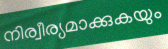
നിര്വീര്യമാക്കുകയും